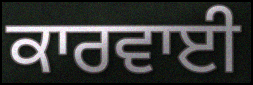
ਕਾਰਵਾਈ